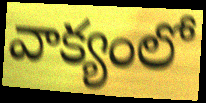
వాక్యంలో